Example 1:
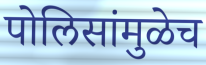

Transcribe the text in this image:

पोलिसांमुळेच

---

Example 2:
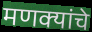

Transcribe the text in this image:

मणक्यांचे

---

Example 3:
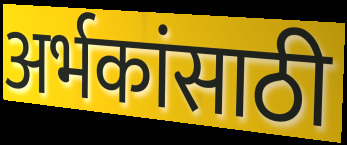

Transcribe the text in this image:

अर्भकांसाठी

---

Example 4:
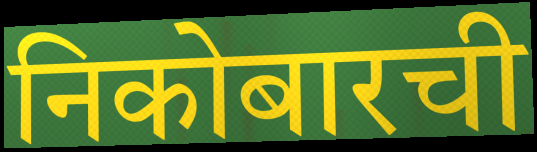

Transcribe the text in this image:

निकोबारची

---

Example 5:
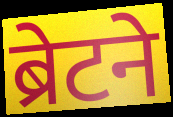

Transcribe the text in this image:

ब्रेटने